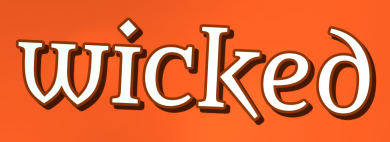
wicked